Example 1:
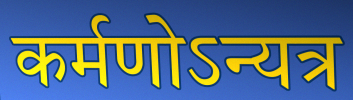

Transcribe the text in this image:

कर्मणोऽन्यत्र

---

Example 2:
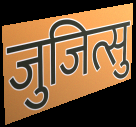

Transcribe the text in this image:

जुजित्सु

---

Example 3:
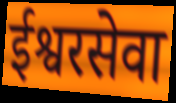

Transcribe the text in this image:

ईश्वरसेवा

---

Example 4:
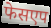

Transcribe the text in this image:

फेसएप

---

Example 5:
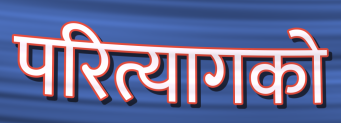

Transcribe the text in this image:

परित्यागको